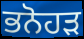
ਭਨੋਹੜ